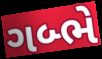
ગબ્ભે